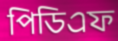
পিডিএফ